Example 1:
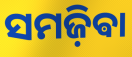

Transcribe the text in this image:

ସମଜ଼ିଵା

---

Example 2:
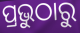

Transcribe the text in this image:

ପ୍ରଭୁଠାରୁ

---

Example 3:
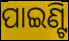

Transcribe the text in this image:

ପାଇଣ୍ଟି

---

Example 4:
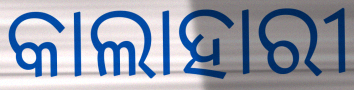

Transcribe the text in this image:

କାଲାହାରୀ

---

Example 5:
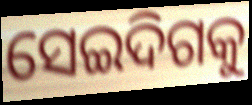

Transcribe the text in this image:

ସେଇଦିଗକୁ